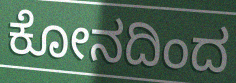
ಕೋನದಿಂದ